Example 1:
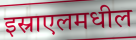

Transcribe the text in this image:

इस्राएलमधील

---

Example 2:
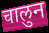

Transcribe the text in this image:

चालुन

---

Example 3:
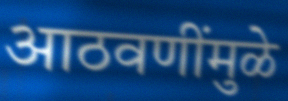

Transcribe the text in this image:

आठवणींमुळे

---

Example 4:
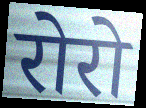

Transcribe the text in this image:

रोरो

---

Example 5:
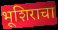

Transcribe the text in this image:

भूशिराचा